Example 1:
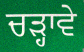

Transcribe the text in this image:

ਚੜ੍ਹਾਵੇ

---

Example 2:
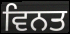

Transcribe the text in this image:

ਵਿਨਤ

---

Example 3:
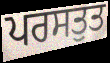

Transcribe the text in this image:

ਪਰਸਤੁਤ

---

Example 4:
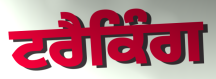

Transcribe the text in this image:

ਟਰੈਕਿੰਗ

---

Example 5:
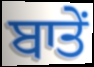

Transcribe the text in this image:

ਬਾਤੇਂ